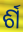
ର୍ଶ